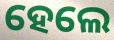
ହେଲେ